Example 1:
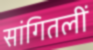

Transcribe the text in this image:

सांगितलीं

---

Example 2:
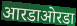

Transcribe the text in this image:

आरडाओरडा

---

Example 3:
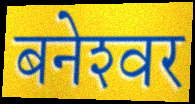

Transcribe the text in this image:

बनेश्वर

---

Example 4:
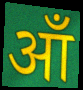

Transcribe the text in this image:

आँ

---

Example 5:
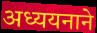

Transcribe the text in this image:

अध्ययनाने